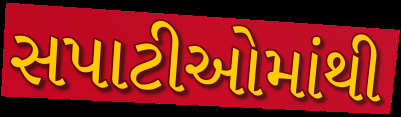
સપાટીઓમાંથી